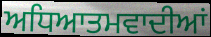
ਅਧਿਆਤਮਵਾਦੀਆਂ